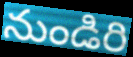
నుండిరి